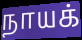
நாயக்